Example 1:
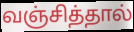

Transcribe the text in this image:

வஞ்சித்தால்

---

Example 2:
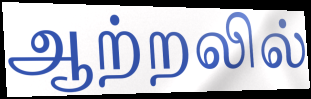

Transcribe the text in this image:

ஆற்றலில்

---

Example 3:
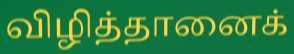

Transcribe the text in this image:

விழித்தானைக்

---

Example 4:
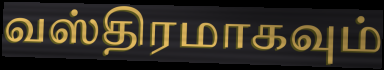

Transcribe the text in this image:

வஸ்திரமாகவும்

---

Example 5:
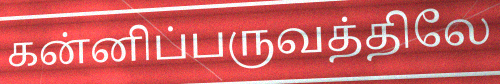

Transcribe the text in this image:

கன்னிப்பருவத்திலே